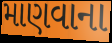
માણવાના